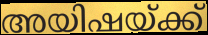
അയിഷയ്ക്ക്